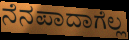
ನೆನಪಾದಾಗೆಲ್ಲ